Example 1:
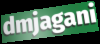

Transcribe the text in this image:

dmjagani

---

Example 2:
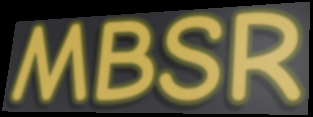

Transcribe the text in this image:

MBSR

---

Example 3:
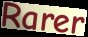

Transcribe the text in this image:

Rarer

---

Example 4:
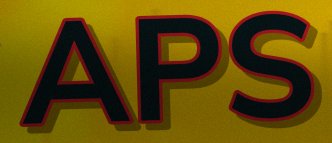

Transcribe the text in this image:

APS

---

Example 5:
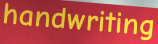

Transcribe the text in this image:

handwriting